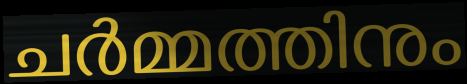
ചർമ്മത്തിനും